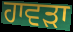
ਹਾਵਡ਼ਾ